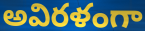
అవిరళంగా